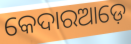
କେଦାରଆଡ଼େ